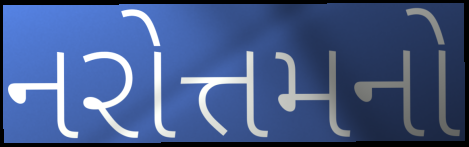
નરોત્તમનો